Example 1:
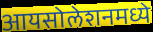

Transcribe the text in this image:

आयसोलेशनमध्ये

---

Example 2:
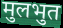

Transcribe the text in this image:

मुलभुत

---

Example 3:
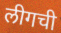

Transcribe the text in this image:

लीगची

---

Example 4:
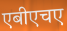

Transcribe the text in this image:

एबीएचए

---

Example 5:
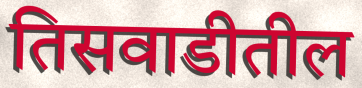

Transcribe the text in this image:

तिसवाडीतील